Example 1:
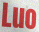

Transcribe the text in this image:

Luo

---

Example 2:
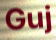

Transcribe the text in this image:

Guj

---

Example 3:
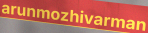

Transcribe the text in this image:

arunmozhivarman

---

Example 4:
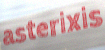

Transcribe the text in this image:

asterixis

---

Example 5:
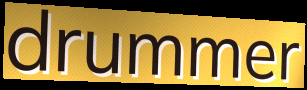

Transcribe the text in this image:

drummer